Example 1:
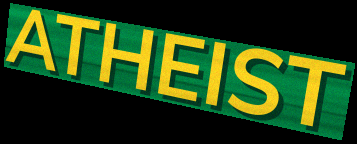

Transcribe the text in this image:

ATHEIST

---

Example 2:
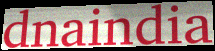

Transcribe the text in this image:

dnaindia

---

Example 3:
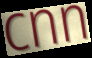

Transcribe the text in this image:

cnn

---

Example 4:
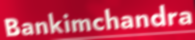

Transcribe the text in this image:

Bankimchandra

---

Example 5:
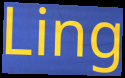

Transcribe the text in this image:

Ling